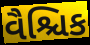
વૈશ્ચિક